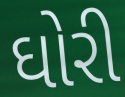
ઘોરી